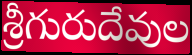
శ్రీగురుదేవుల